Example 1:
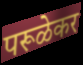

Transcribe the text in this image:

परूळेकर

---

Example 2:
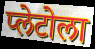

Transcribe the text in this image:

प्लेटोला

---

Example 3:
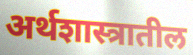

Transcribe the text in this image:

अर्थशास्त्रातील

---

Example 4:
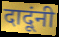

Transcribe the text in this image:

दादूंनी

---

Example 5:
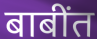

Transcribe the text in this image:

बाबींत